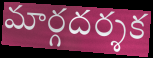
మార్గదర్శక